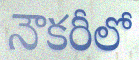
నౌకరీలో